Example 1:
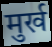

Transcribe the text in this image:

मुर्ख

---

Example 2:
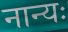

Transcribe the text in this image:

नान्यः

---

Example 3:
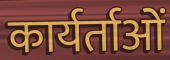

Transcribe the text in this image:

कार्यर्ताओं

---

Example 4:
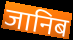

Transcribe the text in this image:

जानिब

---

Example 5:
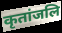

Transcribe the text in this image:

कृतांजलि